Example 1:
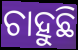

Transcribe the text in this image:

ଚାହୁଛି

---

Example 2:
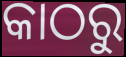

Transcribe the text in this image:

କାଠରୁ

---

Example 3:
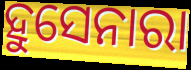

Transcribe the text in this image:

ହୁସେନାରା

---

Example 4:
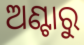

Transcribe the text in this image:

ଅଣ୍ଟାରୁ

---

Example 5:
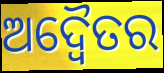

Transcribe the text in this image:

ଅଦ୍ଵୈତର